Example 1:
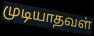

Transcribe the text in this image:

முடியாதவள்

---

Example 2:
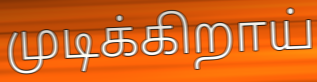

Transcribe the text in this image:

முடிக்கிறாய்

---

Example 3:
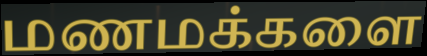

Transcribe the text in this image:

மணமக்களை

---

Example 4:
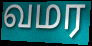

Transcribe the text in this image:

வமர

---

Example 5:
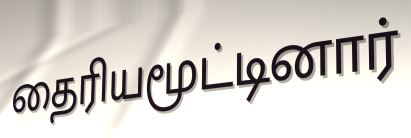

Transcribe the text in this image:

தைரியமூட்டினார்